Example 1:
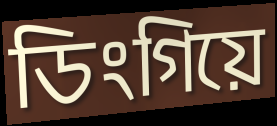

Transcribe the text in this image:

ডিংগিয়ে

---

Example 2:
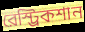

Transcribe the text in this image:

রেস্ট্রিকশান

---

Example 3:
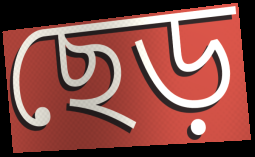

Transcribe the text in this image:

ছেড়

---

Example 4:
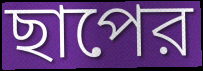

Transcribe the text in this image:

ছাপের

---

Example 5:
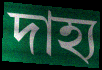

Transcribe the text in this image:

দাহ্য